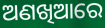
ଅଣଖିଆରେ